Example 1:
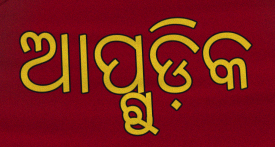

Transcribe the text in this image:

ଆପ୍ଗୁଡ଼ିକ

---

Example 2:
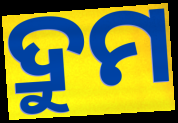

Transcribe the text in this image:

ଦ୍ରୁମ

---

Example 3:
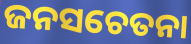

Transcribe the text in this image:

ଜନସଚେତନା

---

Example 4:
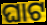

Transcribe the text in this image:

ଘାଟ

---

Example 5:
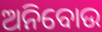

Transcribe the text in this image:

ଅନିବୋଉ